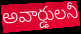
అవార్డులనీ